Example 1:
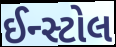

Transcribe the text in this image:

ઈન્સ્ટોલ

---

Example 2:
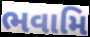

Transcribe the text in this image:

ભવામિ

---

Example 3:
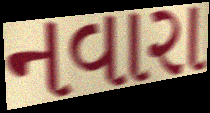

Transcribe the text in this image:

નવારા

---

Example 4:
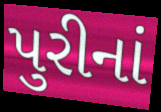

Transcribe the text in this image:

પુરીનાં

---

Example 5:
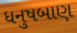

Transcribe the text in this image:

ધનુષબાણ